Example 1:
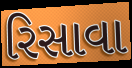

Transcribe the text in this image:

રિસાવા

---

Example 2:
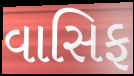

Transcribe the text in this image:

વાસિફ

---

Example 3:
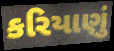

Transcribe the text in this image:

કરિયાણું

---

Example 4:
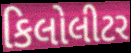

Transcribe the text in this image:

કિલોલીટર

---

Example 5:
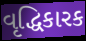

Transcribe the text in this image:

વૃદ્ધિકારક